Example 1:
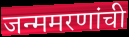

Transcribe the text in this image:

जन्ममरणांची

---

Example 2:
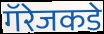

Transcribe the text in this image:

गॅरेजकडे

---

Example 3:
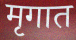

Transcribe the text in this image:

मृगात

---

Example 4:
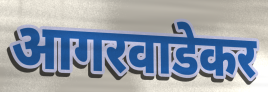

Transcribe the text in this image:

आगरवाडेकर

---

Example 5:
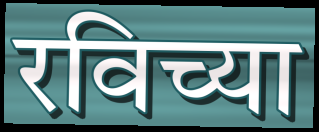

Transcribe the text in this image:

रविच्या